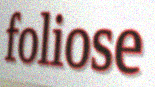
foliose